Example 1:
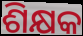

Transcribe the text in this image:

ଶିକ୍ଷକ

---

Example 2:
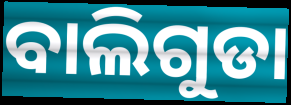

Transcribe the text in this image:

ବାଲିଗୁଡା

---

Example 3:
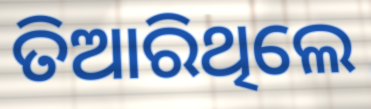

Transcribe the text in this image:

ତିଆରିଥିଲେ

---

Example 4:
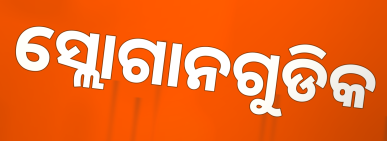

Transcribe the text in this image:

ସ୍ଲୋଗାନଗୁଡିକ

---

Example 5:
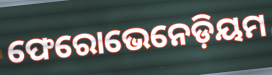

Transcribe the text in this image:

ଫେରୋଭେନେଡ଼ିୟମ